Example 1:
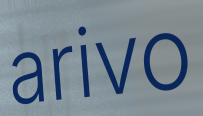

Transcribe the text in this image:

arivo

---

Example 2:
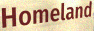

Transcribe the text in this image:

Homeland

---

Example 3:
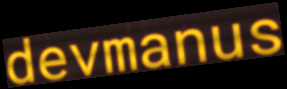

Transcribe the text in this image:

devmanus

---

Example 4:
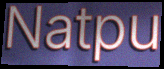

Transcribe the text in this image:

Natpu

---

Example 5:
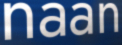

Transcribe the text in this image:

naan